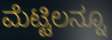
ಮೆಟ್ಟಿಲನ್ನೂ